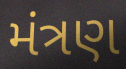
મંત્રણ